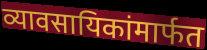
व्यावसायिकांमार्फत